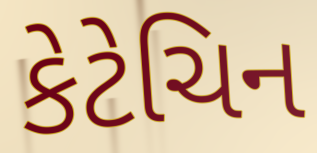
કેટેચિન